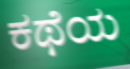
ಕಥೆಯ